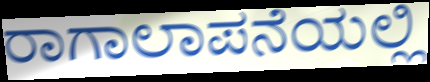
ರಾಗಾಲಾಪನೆಯಲ್ಲಿ